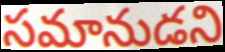
సమానుడని